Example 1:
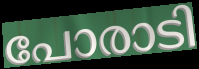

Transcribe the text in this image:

പോരാടി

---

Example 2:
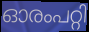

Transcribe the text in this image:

ഓരംപറ്റി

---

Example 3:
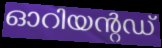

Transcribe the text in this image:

ഓറിയന്റഡ്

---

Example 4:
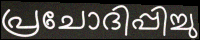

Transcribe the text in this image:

പ്രചോദിപ്പിച്ചു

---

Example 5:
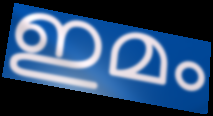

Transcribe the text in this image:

ഇമം